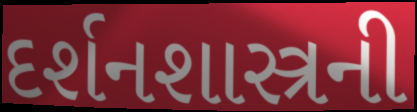
દર્શનશાસ્ત્રની